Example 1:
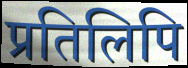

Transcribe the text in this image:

प्रतिलिपि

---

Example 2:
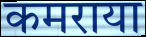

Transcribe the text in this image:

कमराया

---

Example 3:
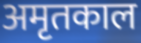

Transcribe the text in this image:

अमृतकाल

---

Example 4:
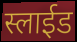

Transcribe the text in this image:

स्लाईड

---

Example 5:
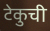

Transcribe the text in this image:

टेकुची